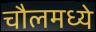
चौलमध्ये